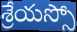
శ్రేయస్సో